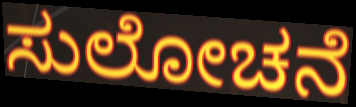
ಸುಲೋಚನೆ